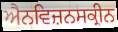
ਐਨਵਿਜ਼ਨਸਕ੍ਰੀਨ